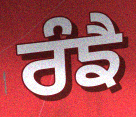
ਰੰਙੈ